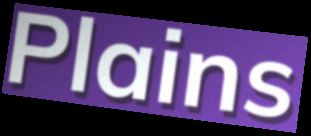
Plains